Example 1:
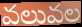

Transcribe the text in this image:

వలువల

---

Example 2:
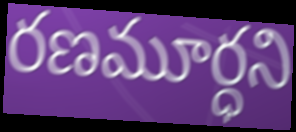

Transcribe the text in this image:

రణమూర్ధని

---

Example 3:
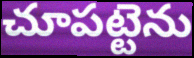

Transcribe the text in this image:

చూపట్టెను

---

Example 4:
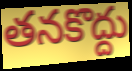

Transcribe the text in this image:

తనకొద్దు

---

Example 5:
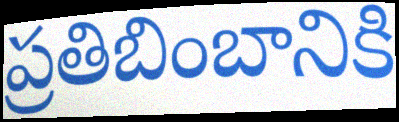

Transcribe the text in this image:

ప్రతిబింబానికి